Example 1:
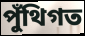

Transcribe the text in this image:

পুঁথিগত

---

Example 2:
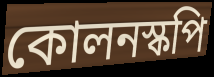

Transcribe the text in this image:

কোলনস্কপি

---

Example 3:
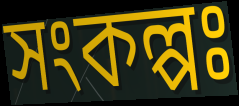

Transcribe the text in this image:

সংকল্পঃ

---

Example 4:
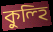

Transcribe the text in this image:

কুল্হি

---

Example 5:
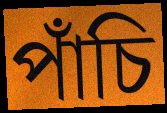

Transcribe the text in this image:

পাঁচি